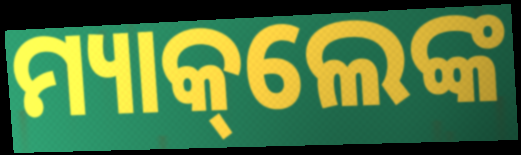
ମ୍ୟାକ୍‌ଲେଙ୍କ